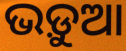
ଭଡ଼ୁଆ